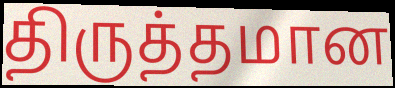
திருத்தமான